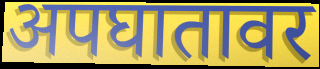
अपघातावर